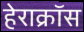
हेराक्रॉस